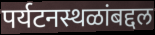
पर्यटनस्थळांबद्दल